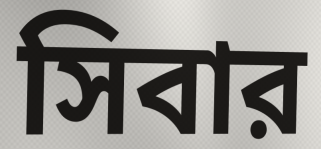
সিবার